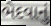
ભેદવાનું